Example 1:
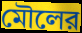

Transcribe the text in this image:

মৌলের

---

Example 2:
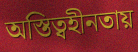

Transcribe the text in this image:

অস্তিত্বহীনতায়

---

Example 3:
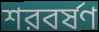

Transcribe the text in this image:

শরবর্ষণ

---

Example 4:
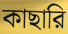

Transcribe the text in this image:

কাছারি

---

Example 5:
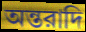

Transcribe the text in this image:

অন্তরাদি